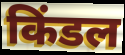
किंडल